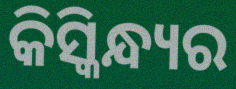
କିସ୍କିନ୍ଧ୍ୟର